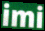
imi